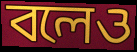
বলেও